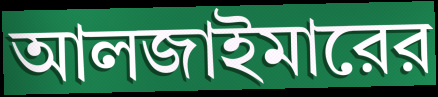
আলজাইমারের